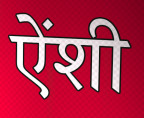
ऐंशी